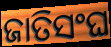
ଜାତିସଂଘ